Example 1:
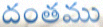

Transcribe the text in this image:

దంతము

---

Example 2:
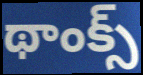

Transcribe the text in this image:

థాంక్స్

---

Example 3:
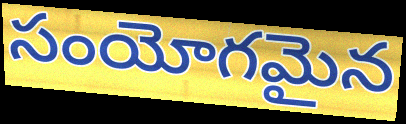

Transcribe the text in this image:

సంయోగమైన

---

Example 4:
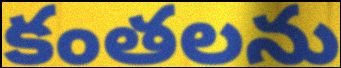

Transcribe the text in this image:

కంతలను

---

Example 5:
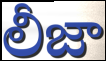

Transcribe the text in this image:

లీజా